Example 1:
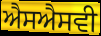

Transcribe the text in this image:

ਐਸਐਸਵੀ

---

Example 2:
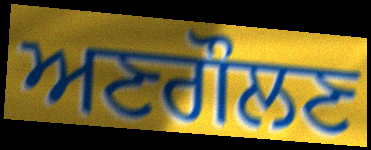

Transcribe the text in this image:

ਅਣਗੌਲਣ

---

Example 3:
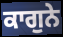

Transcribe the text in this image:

ਕਾਗੁਨੇ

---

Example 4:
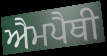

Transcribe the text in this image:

ਐਮਪੈਥੀ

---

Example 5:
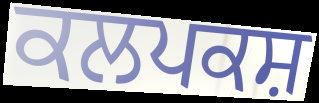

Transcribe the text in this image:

ਕਲਪਕਸ਼